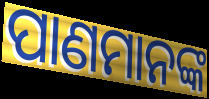
ପାଣମାନଙ୍କ